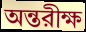
অন্তরীক্ষ